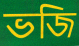
ভজি